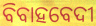
ବିବାହବେଦୀ